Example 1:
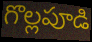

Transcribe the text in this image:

గొల్లపూడి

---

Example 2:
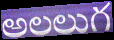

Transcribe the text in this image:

అలలుగ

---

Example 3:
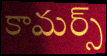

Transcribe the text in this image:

కామర్స్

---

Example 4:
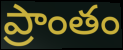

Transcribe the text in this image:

ప్రాంతం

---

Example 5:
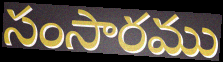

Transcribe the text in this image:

సంసారము